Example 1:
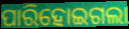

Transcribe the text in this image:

ପାରିହୋଇଗଲା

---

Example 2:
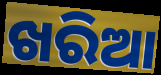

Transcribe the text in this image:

ଖରିଆ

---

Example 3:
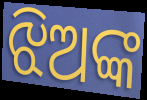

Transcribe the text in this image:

ଝିଅଙ୍କ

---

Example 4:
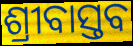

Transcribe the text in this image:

ଶ୍ରୀବାସ୍ତବ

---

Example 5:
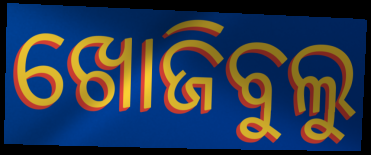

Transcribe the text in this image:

ଖୋଜିବୁଲୁ